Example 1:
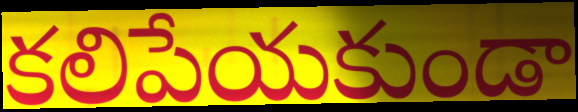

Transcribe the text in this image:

కలిపేయకుండా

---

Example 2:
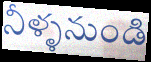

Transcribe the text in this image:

నీళ్ళనుండి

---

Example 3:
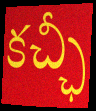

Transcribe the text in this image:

కచ్ఛీ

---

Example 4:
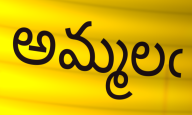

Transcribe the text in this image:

అమ్మలఁ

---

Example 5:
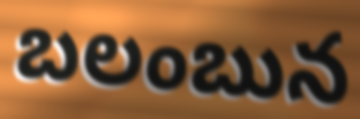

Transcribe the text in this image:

బలంబున